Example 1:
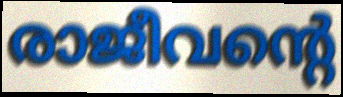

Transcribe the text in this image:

രാജീവന്റെ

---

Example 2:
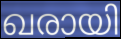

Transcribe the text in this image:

ഖരായി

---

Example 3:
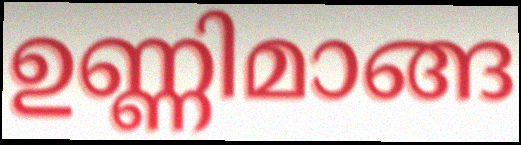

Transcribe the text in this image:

ഉണ്ണിമാങ്ങ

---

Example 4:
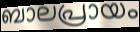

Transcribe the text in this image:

ബാലപ്രായം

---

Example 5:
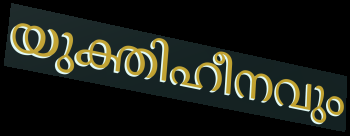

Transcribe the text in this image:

യുക്തിഹീനവും